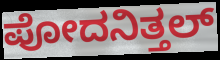
ಪೋದನಿತ್ತಲ್